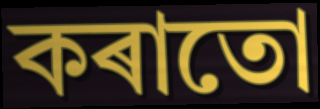
কৰাতো